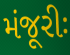
મંજૂરીઃ